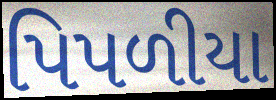
પિપળીયા